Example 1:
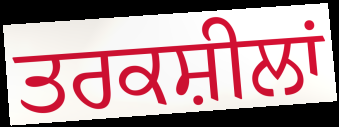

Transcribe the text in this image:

ਤਰਕਸ਼ੀਲਾਂ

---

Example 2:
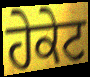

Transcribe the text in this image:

ਹੇਕੇਟ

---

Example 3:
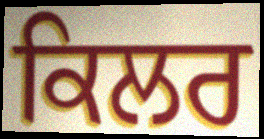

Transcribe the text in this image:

ਕਿਲਰ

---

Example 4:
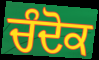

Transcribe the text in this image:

ਚੰਦੋਕ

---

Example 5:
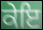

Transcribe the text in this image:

ਕੇਇ